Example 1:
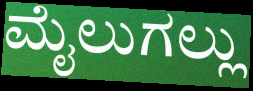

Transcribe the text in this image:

ಮೈಲುಗಲ್ಲು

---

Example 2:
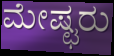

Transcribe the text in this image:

ಮೇಷ್ಟರು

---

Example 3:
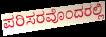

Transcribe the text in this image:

ಪರಿಸರವೊಂದರಲ್ಲಿ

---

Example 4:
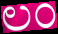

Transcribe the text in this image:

ಲಂ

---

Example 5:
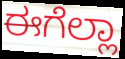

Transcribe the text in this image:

ಈಗೆಲ್ಲಾ